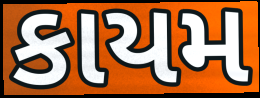
કાયમ